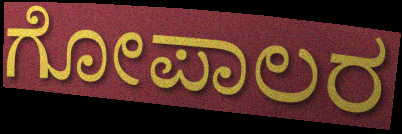
ಗೋಪಾಲರ